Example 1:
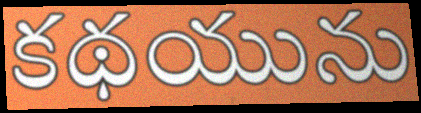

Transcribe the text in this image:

కథయును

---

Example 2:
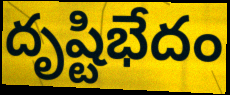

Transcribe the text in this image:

దృష్టిభేదం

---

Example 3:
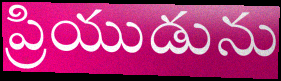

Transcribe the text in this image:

ప్రియుడును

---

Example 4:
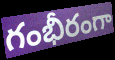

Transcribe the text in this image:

గంభీరంగా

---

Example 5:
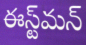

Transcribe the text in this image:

ఈస్ట్‌మన్